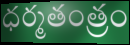
ధర్మతంత్రం